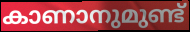
കാണാനുമുണ്ട്